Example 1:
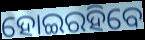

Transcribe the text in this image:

ହୋଇରହିବେ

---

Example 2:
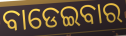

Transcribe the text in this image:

ବାଡେଇବାର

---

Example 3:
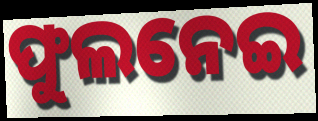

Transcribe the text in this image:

ଫୁଲନେଇ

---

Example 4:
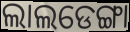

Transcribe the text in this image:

ଲାଲଡେଙ୍ଗା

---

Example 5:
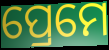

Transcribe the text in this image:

ପ୍ରେମେ